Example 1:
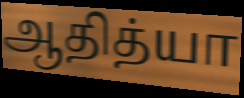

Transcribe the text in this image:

ஆதித்யா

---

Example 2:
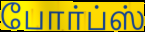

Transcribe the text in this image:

போர்ப்ஸ்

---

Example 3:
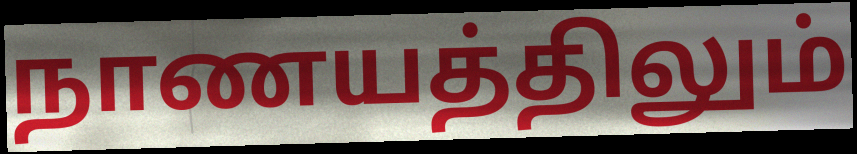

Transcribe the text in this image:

நாணயத்திலும்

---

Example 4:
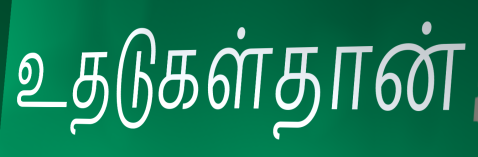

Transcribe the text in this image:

உதடுகள்தான்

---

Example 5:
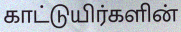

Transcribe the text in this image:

காட்டுயிர்களின்